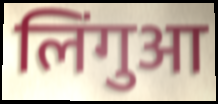
लिंगुआ